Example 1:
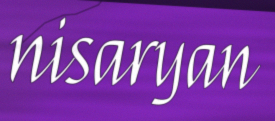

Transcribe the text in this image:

nisaryan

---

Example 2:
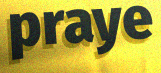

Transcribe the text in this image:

praye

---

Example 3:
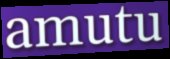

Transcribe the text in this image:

amutu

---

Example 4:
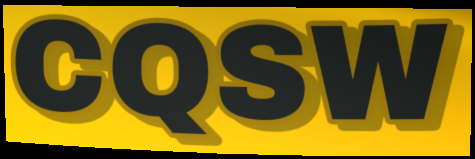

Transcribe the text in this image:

CQSW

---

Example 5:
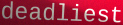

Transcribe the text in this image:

deadliest